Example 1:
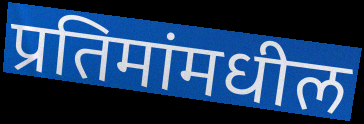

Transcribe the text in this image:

प्रतिमांमधील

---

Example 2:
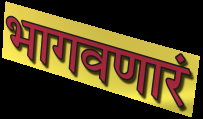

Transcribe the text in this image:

भागवणारं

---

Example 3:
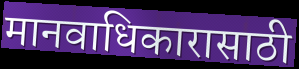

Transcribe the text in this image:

मानवाधिकारासाठी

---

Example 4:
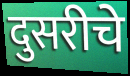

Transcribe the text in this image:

दुसरीचे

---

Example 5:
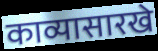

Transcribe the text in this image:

काव्यासारखे